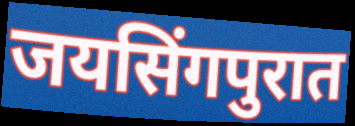
जयसिंगपुरात